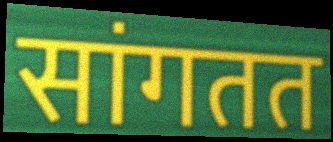
सांगतत